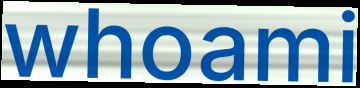
whoami